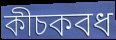
কীচকবধ